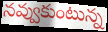
నవ్వుకుంటున్న